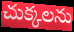
చుక్కలను